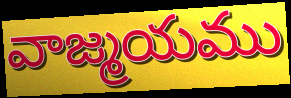
వాజ్మయము